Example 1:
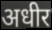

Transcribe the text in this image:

अधीर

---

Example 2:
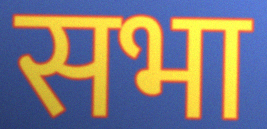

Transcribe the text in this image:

सभा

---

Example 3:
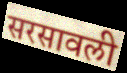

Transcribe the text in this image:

सरसावली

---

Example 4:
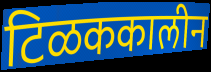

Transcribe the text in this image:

टिळककालीन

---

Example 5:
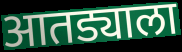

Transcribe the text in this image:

आतड्याला